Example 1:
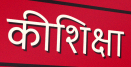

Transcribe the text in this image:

कीशिक्षा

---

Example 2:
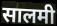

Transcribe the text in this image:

सालमी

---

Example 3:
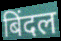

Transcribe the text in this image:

बिंदल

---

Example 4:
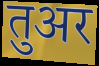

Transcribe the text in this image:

तुअर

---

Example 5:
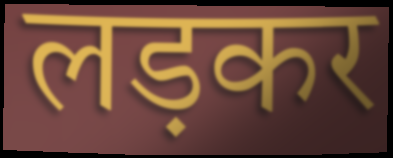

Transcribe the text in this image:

लड़कर